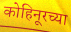
कोहिनूरच्या